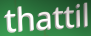
thattil